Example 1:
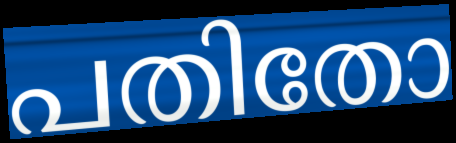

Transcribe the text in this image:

പതിതോ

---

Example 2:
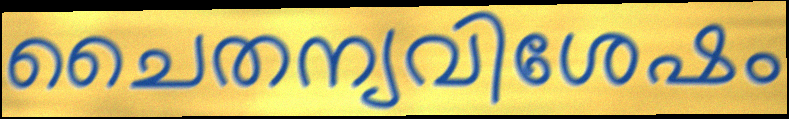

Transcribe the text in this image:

ചൈതന്യവിശേഷം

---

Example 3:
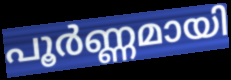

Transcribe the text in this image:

പൂർണ്ണമായി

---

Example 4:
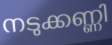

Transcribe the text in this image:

നടുക്കണ്ണി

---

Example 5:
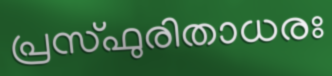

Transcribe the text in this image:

പ്രസ്ഫുരിതാധരഃ